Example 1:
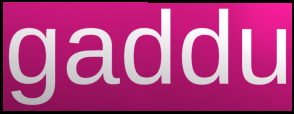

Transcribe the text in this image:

gaddu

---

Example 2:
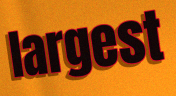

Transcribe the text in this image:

largest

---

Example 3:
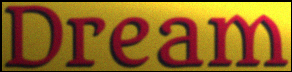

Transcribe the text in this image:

Dream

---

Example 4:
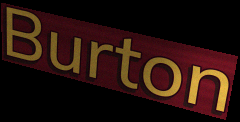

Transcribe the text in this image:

Burton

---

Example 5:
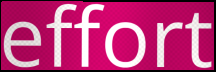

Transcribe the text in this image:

effort